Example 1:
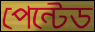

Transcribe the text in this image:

পেন্টেড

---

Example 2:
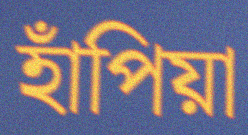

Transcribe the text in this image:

হাঁপিয়া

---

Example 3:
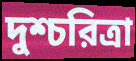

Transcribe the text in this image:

দুশ্চরিত্রা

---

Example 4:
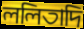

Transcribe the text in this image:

ললিতাদি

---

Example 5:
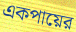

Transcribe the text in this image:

একপায়ের